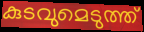
കുടവുമെടുത്ത്